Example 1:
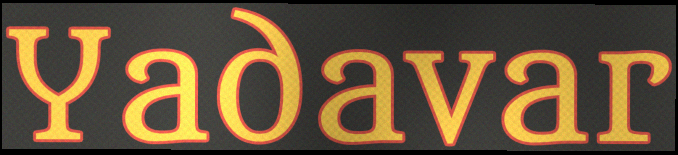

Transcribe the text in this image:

Yadavar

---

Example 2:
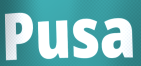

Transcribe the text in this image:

Pusa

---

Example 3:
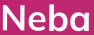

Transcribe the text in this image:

Neba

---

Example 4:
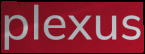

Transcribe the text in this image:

plexus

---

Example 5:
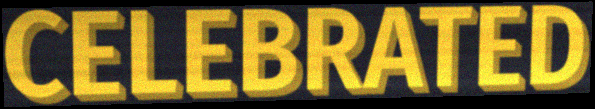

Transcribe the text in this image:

CELEBRATED